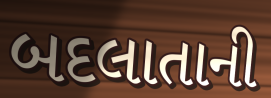
બદલાતાની